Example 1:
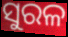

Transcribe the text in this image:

ସୁରଳ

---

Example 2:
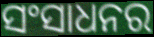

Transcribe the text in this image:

ସଂସାଧନର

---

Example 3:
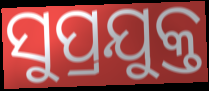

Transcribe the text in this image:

ସୁପ୍ରଯୁକ୍ତ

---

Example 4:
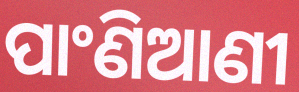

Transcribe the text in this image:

ପାଂଣିଆଣୀ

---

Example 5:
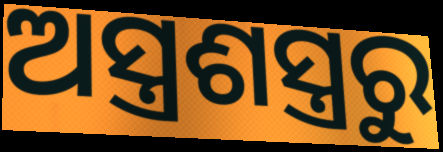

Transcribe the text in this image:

ଅସ୍ତ୍ରଶସ୍ତ୍ରରୁ